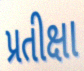
પ્રતીક્ષા